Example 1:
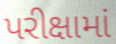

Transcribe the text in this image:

પરીક્ષામાં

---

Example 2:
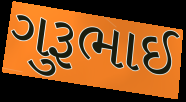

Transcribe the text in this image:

ગુરૂભાઈ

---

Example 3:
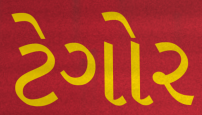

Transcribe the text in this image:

ટેગોર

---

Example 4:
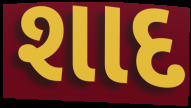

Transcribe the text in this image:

શાદ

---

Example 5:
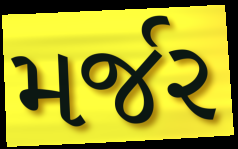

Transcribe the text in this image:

મર્જર